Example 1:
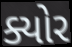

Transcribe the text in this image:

ક્યોર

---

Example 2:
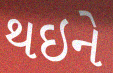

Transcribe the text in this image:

થઇને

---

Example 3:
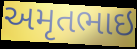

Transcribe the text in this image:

અમૃતભાઇ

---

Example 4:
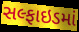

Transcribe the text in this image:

સલ્ફાઇડમાં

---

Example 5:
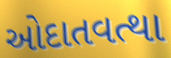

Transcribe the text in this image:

ઓદાતવત્થા